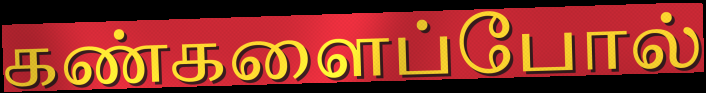
கண்களைப்போல்